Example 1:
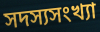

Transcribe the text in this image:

সদস্যসংখ্যা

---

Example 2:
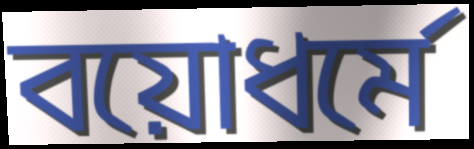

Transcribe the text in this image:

বয়োধর্মে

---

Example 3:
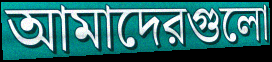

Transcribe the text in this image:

আমাদেরগুলো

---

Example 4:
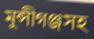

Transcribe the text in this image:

মুন্সীগঞ্জসহ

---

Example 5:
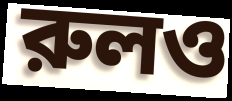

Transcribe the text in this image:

রুলও